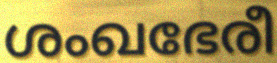
ശംഖഭേരീ